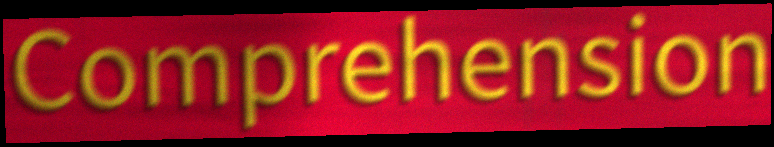
Comprehension